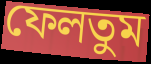
ফেলতুম